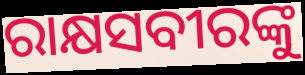
ରାକ୍ଷସବୀରଙ୍କୁ